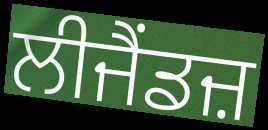
ਲੀਜੈਂਡਜ਼